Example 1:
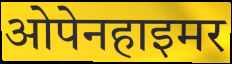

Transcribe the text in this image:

ओपेनहाइमर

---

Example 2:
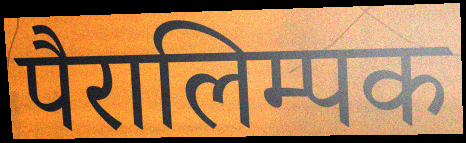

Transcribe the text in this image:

पैरालिम्पक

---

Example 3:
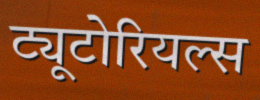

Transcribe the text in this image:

ट्यूटोरियल्स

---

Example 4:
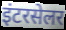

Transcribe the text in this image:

इंटरसेलर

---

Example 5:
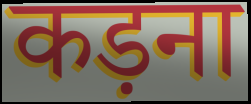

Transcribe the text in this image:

कड़ना